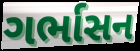
ગર્ભાસન